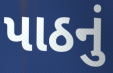
પાઠનું